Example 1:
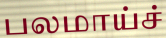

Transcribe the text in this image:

பலமாய்ச்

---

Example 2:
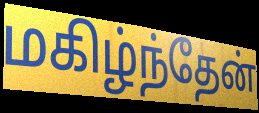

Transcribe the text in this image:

மகிழ்ந்தேன்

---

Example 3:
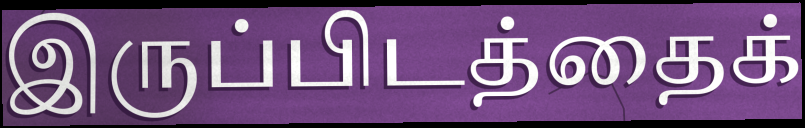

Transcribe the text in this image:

இருப்பிடத்தைக்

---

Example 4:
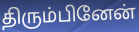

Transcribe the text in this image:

திரும்பினேன்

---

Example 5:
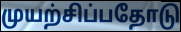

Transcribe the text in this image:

முயற்சிப்பதோடு